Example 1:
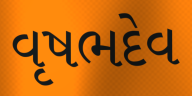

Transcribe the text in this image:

વૃષભદેવ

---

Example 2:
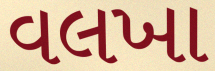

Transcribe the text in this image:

વલખા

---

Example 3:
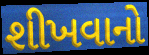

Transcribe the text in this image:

શીખવાનો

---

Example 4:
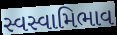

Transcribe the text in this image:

સ્વસ્વામિભાવ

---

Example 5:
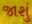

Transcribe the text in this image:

જાશું